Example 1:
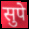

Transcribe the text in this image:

सुपे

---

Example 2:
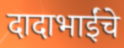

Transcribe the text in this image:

दादाभाईंचे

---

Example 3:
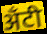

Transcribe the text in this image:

अँटी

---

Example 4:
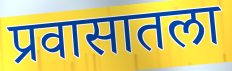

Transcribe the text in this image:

प्रवासातला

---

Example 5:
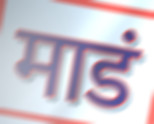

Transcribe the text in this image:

माडं